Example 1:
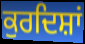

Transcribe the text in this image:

ਕੁਰਦਿਸ਼ਾਂ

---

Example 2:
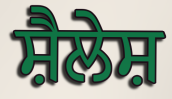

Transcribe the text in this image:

ਸ਼ੈਲੇਸ਼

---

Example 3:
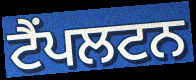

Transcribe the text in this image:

ਟੈਂਪਲਟਨ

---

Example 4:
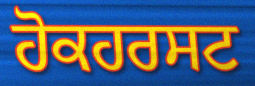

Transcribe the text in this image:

ਹੋਕਹਰਸਟ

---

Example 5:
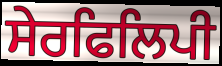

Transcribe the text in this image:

ਸੇਰਫਿਲਿਪੀ